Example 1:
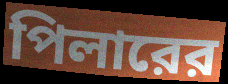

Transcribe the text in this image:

পিলারের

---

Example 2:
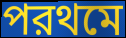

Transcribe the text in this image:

পরথমে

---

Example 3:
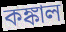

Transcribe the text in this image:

কঙ্কাল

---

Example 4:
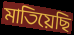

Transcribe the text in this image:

মাতিয়েছি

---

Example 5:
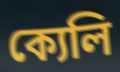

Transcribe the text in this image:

ক্যেলি